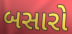
બસારો